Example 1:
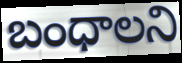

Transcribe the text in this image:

బంధాలని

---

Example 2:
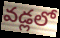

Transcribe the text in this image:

వడ్లలో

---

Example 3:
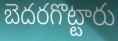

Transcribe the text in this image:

బెదరగొట్టారు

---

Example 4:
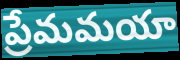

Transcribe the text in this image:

ప్రేమమయా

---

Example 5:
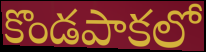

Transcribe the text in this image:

కొండపాకలో